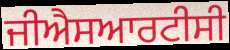
ਜੀਐਸਆਰਟੀਸੀ